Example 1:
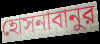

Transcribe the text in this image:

হোসনাবানুর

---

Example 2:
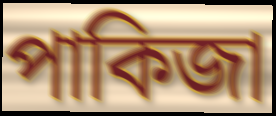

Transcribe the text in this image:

পাকিজা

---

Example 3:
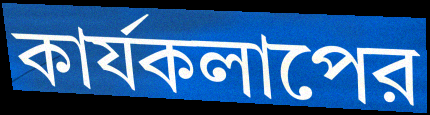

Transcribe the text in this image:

কার্যকলাপের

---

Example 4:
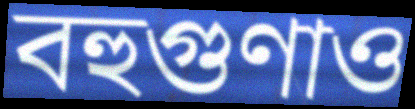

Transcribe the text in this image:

বহুগুণাও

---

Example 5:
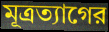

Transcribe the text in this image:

মূত্রত্যাগের